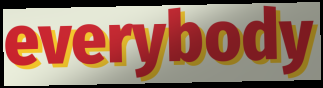
everybody